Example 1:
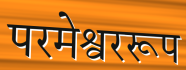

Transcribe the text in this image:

परमेश्वररूप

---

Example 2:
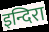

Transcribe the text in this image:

इन्दिरा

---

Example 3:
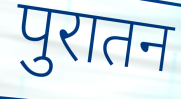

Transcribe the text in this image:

पुरातन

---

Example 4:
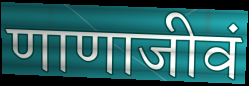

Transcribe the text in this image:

णाणाजीवं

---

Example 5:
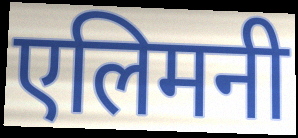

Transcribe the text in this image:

एलिमनी